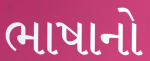
ભાષાનો